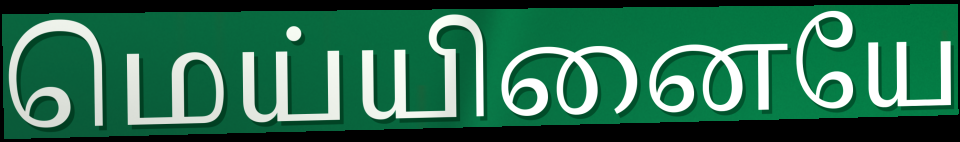
மெய்யினையே